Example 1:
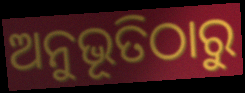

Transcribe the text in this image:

ଅନୁଭୂତିଠାରୁ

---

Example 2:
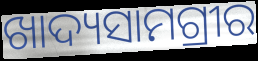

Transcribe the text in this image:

ଖାଦ୍ୟସାମଗ୍ରୀର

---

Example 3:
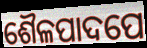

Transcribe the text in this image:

ଶୈଳପାଦପେ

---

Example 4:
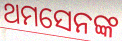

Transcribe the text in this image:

ଥମସେନଙ୍କ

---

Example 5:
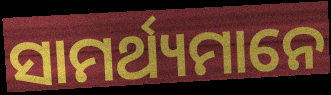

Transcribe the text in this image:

ସାମର୍ଥ୍ୟମାନେ